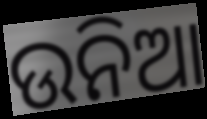
ଉନିଆ